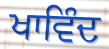
ਖਾਵਿੰਦ